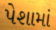
પેશામાં